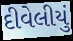
દીવેલીયું